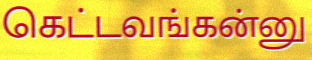
கெட்டவங்கன்னு